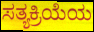
ಸತ್ಯಕ್ರಿಯೆಯ